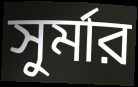
সুর্মার